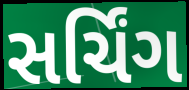
સર્ચિંગ